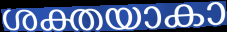
ശക്തയാകാ